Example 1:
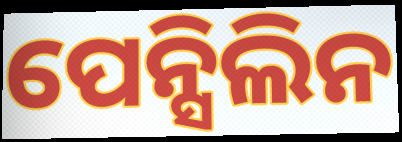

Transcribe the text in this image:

ପେନ୍ସିଲିନ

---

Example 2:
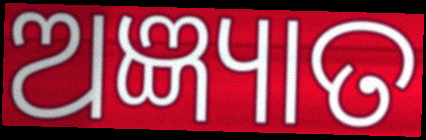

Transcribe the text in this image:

ଅଜ୍ଞ୍ୟାତ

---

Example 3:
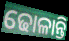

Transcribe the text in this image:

ଢୋଳାନ୍ତି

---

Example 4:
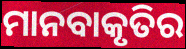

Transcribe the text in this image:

ମାନବାକୃତିର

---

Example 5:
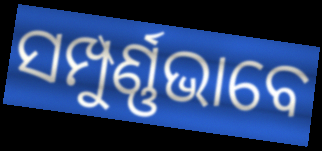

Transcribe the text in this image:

ସମ୍ପୁର୍ଣ୍ଣଭାବେ